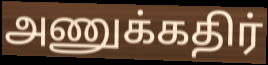
அணுக்கதிர்